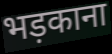
भड़काना